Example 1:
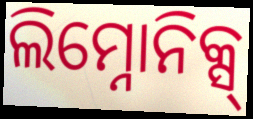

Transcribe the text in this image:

ଲିମ୍ନୋନିକ୍ସ୍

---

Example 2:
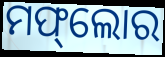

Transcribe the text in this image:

ମଫ୍‌ଲୋର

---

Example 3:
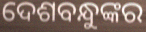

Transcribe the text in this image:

ଦେଶବନ୍ଧୁଙ୍କର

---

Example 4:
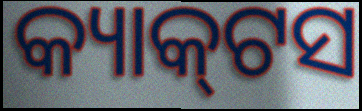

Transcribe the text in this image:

କ୍ୟାକ୍‌ଟସ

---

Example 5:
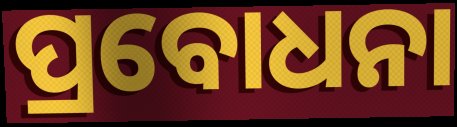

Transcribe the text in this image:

ପ୍ରବୋଧନା